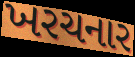
ખરચનાર